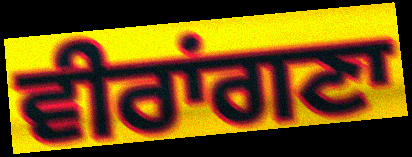
ਵੀਰਾਂਗਣਾ